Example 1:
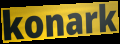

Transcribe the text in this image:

konark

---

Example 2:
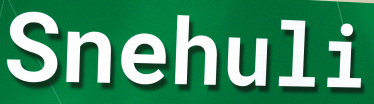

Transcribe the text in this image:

Snehuli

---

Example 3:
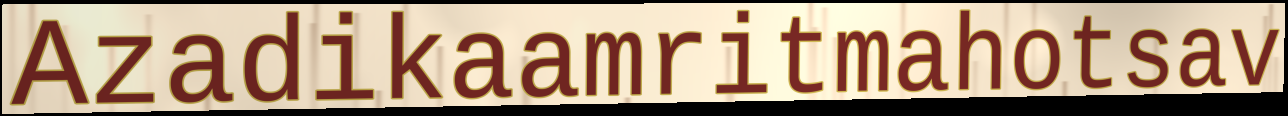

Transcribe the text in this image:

Azadikaamritmahotsav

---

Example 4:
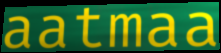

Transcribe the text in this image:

aatmaa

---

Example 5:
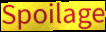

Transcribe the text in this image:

Spoilage